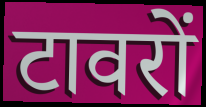
टावरों